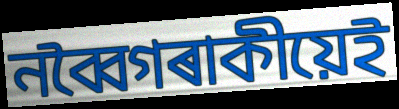
নব্বৈগৰাকীয়েই